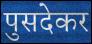
पुसदेकर